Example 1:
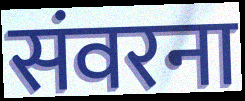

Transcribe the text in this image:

संवरना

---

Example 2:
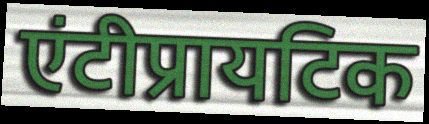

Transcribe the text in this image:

एंटीप्रायटिक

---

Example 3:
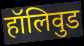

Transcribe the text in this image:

हॉलिवुड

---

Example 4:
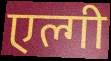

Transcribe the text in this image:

एल्गी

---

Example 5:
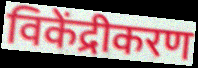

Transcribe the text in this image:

विकेंद्रीकरण